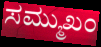
ಸಮ್ಮುಖಂ